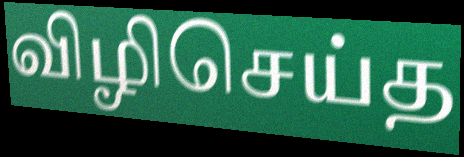
விழிசெய்த